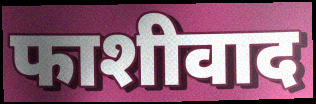
फाशीवाद